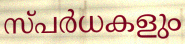
സ്പർധകളും